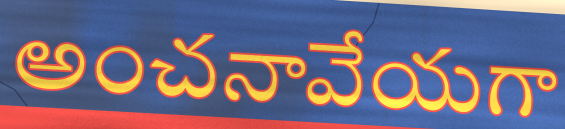
అంచనావేయగా